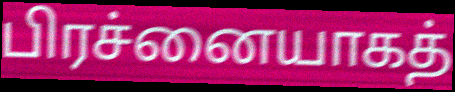
பிரச்னையாகத்